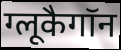
ग्लूकैगॉन